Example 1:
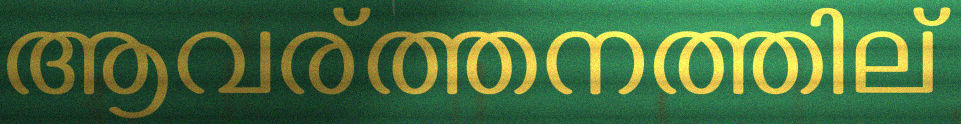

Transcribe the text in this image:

ആവര്ത്തനത്തില്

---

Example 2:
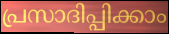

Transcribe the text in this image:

പ്രസാദിപ്പിക്കാം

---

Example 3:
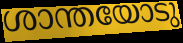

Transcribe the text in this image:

ശാന്തയോടു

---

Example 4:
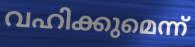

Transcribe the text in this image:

വഹിക്കുമെന്ന്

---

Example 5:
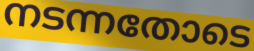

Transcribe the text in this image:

നടന്നതോടെ